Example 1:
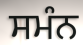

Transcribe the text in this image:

ਸਮੰਨ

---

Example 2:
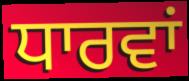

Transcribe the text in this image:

ਧਾਰਵਾਂ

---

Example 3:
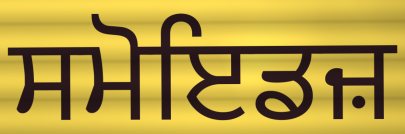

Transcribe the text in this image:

ਸਮੋਇਡਜ਼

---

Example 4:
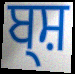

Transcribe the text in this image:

ਬ੍ਸ਼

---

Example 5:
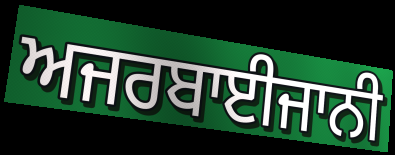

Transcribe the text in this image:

ਅਜਰਬਾਈਜਾਨੀ